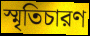
স্মৃতিচারণ